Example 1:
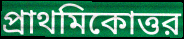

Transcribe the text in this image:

প্রাথমিকোত্তর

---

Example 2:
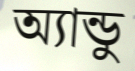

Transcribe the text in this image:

অ্যান্ডু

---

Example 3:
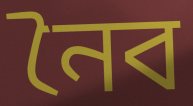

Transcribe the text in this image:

নৈব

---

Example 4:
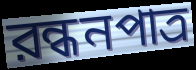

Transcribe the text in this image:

রন্ধনপাত্র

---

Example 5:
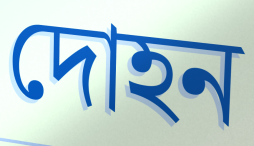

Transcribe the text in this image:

দোহন